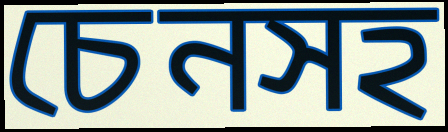
চেনসহ